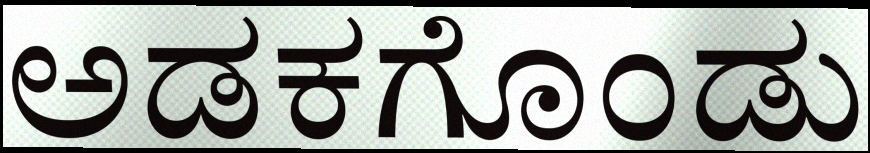
ಅಡಕಗೊಂಡು